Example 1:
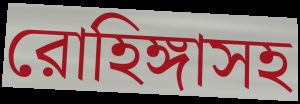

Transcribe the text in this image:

রোহিঙ্গাসহ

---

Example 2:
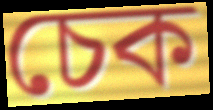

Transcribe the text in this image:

চেক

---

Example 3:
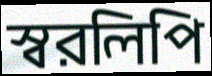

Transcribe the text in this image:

স্বরলিপি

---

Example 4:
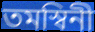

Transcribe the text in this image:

তমস্বিনী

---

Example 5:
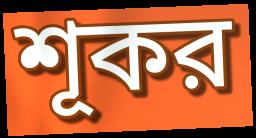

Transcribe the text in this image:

শূকর